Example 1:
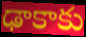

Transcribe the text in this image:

ఢాకాకు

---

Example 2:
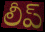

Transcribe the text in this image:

లీప్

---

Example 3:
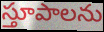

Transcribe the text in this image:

స్తూపాలను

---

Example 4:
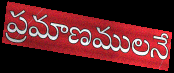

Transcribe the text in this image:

ప్రమాణములనే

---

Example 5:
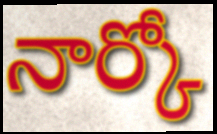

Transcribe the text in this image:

నార్కో